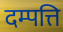
दम्पत्ति